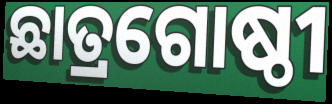
ଛାତ୍ରଗୋଷ୍ଠୀ